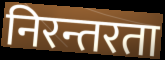
निरन्तरता